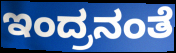
ಇಂದ್ರನಂತೆ